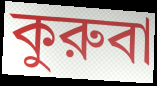
কুরুবা